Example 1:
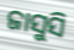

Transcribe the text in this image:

ଜାସୁସି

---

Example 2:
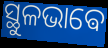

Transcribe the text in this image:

ସ୍ଥୁଳଭାଵେ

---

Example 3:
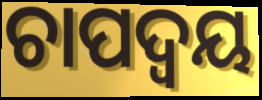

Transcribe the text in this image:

ଚାପଦ୍ଵୟ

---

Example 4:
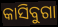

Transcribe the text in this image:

କାସିବୁଗା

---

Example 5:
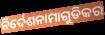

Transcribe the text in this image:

ନିର୍ଦେଶନାମାଗୁଡିକର